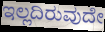
ಇಲ್ಲದಿರುವುದೇ